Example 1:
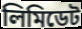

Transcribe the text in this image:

লিমিডেট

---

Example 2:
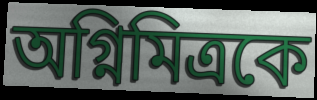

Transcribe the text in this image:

অগ্নিমিত্রকে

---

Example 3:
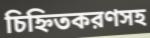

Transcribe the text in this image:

চিহ্নিতকরণসহ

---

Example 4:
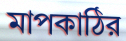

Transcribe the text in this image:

মাপকাঠির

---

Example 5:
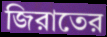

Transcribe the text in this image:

জিরাতের